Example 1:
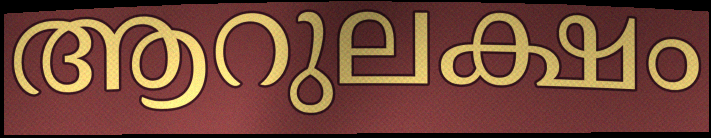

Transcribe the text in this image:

ആറുലക്ഷം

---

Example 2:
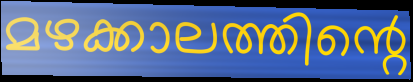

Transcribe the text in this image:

മഴക്കാലത്തിന്റെ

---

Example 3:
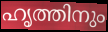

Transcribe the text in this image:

ഹൃത്തിനും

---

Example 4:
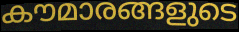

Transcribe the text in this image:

കൗമാരങ്ങളുടെ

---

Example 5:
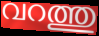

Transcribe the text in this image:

വറത്തു